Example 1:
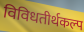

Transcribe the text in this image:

विविधतीर्थकल्प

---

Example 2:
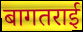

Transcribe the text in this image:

बागतराई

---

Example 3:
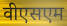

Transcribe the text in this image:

वीएसएम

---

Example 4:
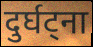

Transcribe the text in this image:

दुर्घट्ना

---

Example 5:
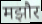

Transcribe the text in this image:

मझौर